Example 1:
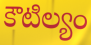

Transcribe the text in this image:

కౌటిల్యం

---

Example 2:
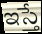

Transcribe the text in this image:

ఇస్తే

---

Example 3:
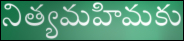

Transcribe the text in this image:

నిత్యమహిమకు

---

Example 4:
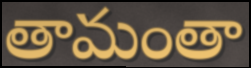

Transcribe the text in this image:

తామంతా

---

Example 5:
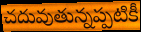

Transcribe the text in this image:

చదువుతున్నప్పటికీ